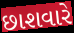
છાશવારે